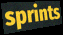
sprints